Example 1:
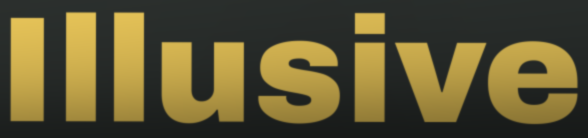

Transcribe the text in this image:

Illusive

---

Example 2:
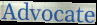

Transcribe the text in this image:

Advocate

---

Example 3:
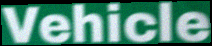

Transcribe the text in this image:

Vehicle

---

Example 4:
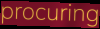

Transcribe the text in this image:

procuring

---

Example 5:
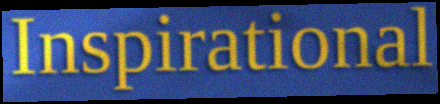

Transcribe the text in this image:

Inspirational